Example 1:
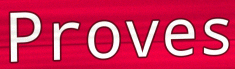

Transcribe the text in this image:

Proves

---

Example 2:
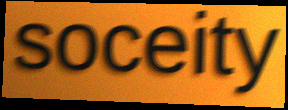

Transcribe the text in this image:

soceity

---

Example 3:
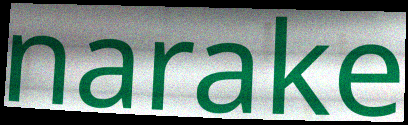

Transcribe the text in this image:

narake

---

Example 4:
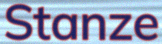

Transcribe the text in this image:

Stanze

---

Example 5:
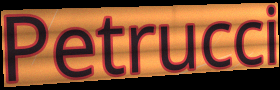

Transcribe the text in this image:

Petrucci